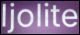
Ijolite